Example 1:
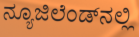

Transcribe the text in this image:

ನ್ಯೂಜಿಲೆಂಡ್‌ನಲ್ಲಿ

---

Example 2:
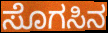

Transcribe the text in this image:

ಸೊಗಸಿನ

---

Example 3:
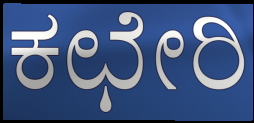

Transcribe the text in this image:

ಕಛೇರಿ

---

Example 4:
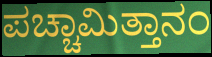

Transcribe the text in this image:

ಪಚ್ಚಾಮಿತ್ತಾನಂ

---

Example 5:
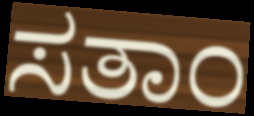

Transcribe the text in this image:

ಸತಾಂ